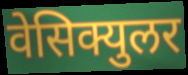
वेसिक्युलर